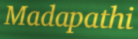
Madapathi